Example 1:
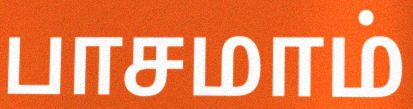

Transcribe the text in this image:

பாசமாம்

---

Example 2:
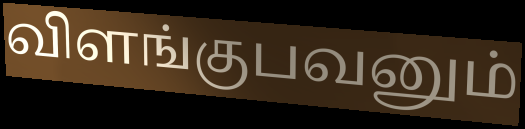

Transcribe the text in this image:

விளங்குபவனும்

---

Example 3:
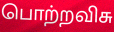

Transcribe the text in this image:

பொற்றவிசு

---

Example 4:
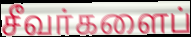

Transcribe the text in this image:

சீவர்களைப்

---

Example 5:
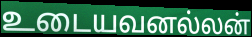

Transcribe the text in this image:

உடையவனல்லன்